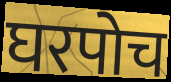
घरपोच